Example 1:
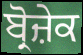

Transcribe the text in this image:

ਬ੍ਰੋਜ਼ੇਕ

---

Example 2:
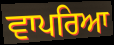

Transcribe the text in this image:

ਵਾਪਰਿਆ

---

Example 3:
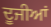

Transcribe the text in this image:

ਦੂਜੀਆਂ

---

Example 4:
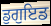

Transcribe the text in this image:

ਡੁਗੁਇਡ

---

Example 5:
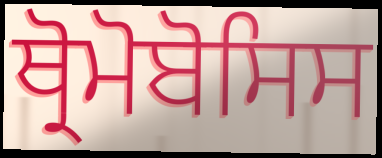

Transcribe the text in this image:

ਥ੍ਰੋਮੋਬੋਸਿਸ